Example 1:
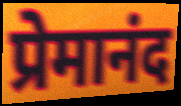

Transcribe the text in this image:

प्रेमानंद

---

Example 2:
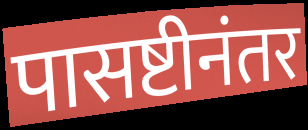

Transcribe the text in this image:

पासष्टीनंतर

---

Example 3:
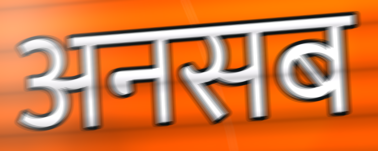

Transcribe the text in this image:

अनसब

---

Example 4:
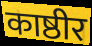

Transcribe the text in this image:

काष्ठीर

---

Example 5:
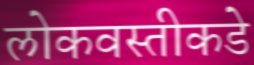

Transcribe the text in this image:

लोकवस्तीकडे